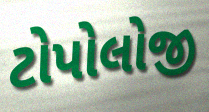
ટોપોલોજી